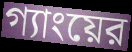
গ্যাংয়ের